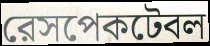
রেসপেকটেবল